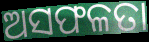
ଅସଫଳତା